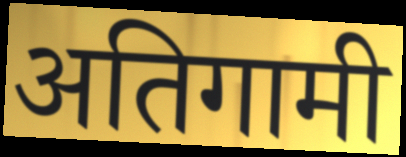
अतिगामी